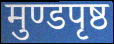
मुण्डपृष्ठ